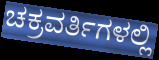
ಚಕ್ರವರ್ತಿಗಳಲ್ಲಿ